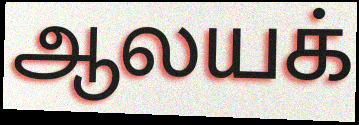
ஆலயக்